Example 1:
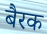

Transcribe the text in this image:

बैरक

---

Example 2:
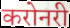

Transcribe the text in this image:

करोनरी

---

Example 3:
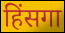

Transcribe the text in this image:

हिंसगा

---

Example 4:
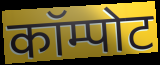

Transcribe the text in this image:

कॉम्पोट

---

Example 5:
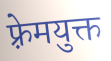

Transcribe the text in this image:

फ़्रेमयुक्त